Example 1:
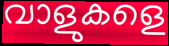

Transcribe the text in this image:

വാളുകളെ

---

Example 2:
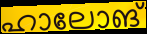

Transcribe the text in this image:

ഹാലോങ്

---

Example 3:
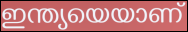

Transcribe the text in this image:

ഇന്ത്യയെയാണ്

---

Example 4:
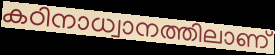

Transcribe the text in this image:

കഠിനാധ്വാനത്തിലാണ്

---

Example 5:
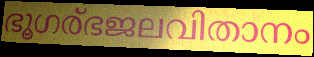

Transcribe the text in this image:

ഭൂഗര്ഭജലവിതാനം